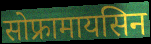
सोफ्रामायसिन